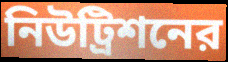
নিউট্রিশনের